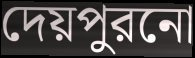
দেয়পুরনো